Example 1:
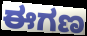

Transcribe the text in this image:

ಈಗಣ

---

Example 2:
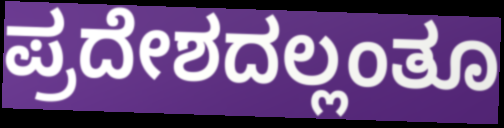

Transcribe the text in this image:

ಪ್ರದೇಶದಲ್ಲಂತೂ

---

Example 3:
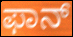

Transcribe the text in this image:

ಫಾನ್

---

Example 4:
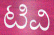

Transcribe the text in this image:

ಟಿವಿ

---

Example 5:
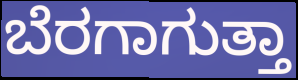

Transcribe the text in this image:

ಬೆರಗಾಗುತ್ತಾ